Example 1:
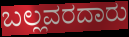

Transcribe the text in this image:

ಬಲ್ಲವರದಾರು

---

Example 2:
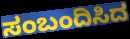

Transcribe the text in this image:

ಸಂಬಂದಿಸಿದ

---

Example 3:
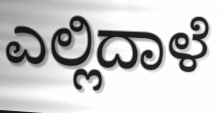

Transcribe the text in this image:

ಎಲ್ಲಿದಾಳೆ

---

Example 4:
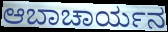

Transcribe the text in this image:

ಆಬಾಚಾರ್ಯನ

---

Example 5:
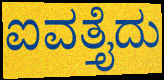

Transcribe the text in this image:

ಐವತ್ತೈದು